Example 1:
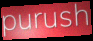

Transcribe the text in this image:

purush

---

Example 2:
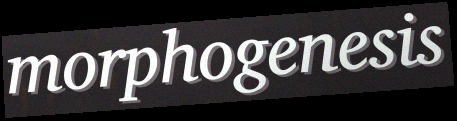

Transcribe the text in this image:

morphogenesis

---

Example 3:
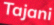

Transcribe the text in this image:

Tajani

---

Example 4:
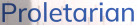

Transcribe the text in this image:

Proletarian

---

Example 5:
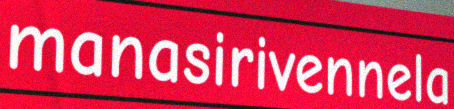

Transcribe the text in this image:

manasirivennela